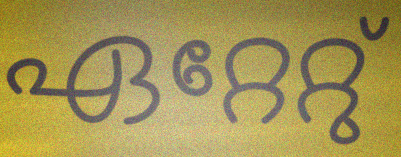
ഏറ്റേറ്റു്